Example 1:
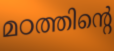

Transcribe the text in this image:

മഠത്തിന്റെ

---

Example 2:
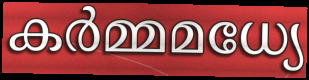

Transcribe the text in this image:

കർമ്മമധ്യേ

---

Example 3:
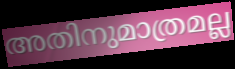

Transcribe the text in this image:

അതിനുമാത്രമല്ല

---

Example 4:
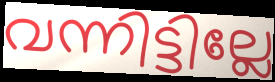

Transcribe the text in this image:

വന്നിട്ടില്ലേ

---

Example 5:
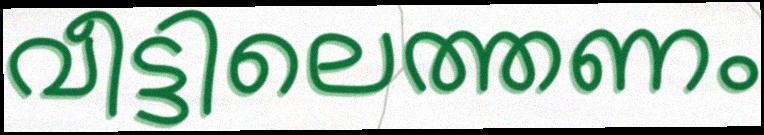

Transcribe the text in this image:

വീട്ടിലെത്തണം